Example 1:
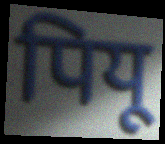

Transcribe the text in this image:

पियू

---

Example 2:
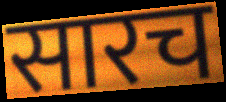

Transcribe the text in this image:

सारच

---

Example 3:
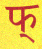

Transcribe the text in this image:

फ्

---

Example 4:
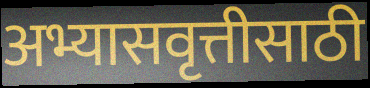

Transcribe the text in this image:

अभ्यासवृत्तीसाठी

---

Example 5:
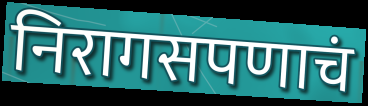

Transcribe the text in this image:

निरागसपणाचं